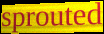
sprouted